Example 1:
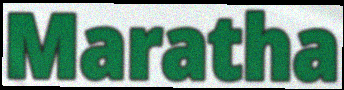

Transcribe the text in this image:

Maratha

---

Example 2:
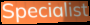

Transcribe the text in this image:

Specialist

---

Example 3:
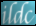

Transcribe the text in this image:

ildc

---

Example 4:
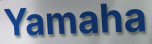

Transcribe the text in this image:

Yamaha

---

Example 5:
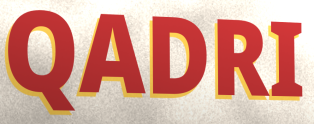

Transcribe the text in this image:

QADRI